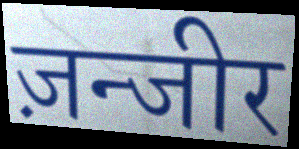
ज़न्जीर